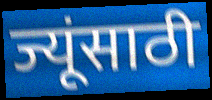
ज्यूंसाठी